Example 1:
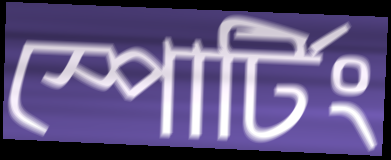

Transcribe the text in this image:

স্পোর্টিং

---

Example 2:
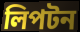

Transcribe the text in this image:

লিপটন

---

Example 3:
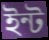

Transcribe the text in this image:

ইন্ট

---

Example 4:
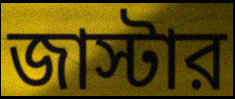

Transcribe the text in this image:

জাস্টার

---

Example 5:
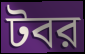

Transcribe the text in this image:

টবর